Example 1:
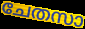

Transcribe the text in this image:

ചേതസാ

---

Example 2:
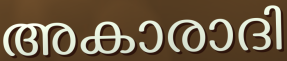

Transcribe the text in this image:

അകാരാദി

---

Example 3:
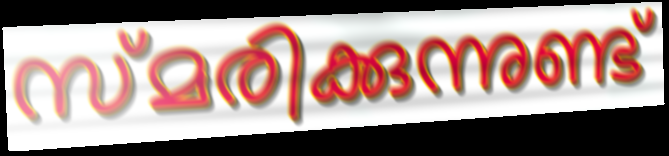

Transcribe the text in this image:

സ്മരിക്കുന്നുണ്ട്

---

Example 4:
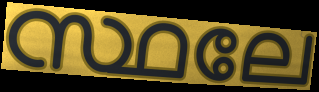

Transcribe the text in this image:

സ്ഥലേ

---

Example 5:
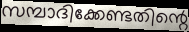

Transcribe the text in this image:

സമ്പാദിക്കേണ്ടതിന്റെ